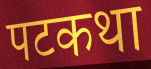
पटकथा